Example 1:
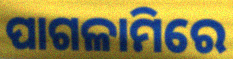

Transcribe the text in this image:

ପାଗଳାମିରେ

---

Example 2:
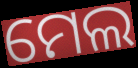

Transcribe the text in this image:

ମେଲ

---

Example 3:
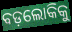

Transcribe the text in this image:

ବଡ଼ଲୋକିକୁ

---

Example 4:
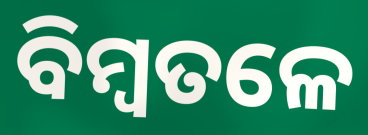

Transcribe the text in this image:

ବିମ୍ବତଳେ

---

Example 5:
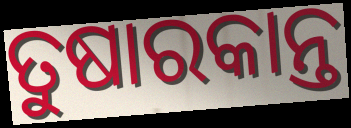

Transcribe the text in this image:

ତୁଷାରକାନ୍ତ